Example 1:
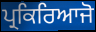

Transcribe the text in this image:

ਪ੍ਰਕਿਰਿਆਜੋ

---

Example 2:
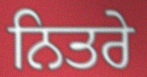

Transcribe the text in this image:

ਨਿਤਰੇ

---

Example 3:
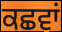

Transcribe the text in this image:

ਕਛਵਾਂ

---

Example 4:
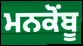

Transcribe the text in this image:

ਮਨਕੋਂਬੂ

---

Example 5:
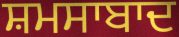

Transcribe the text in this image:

ਸ਼ਮਸਾਬਾਦ